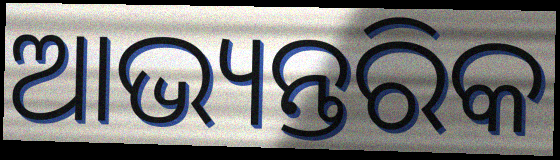
ଆଭ୍ୟନ୍ତରିକ